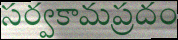
సర్వకామప్రదం